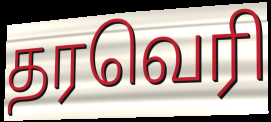
தரவெரி